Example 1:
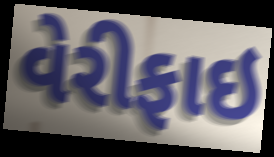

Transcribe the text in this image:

વેરીફાઇ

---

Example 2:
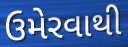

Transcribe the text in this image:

ઉમેરવાથી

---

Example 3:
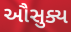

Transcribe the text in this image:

ઔસુક્ય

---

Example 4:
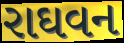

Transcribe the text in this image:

રાઘવન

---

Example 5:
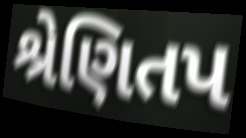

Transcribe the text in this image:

શ્રેણિતપ